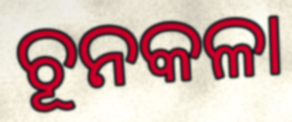
ଚୂନକଳା